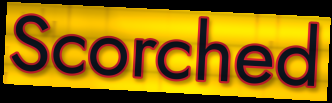
Scorched